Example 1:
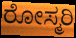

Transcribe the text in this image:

ರೋಸ್ಮರಿ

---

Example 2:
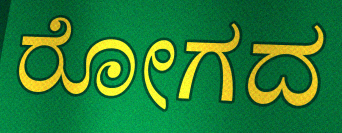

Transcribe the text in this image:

ರೋಗದ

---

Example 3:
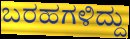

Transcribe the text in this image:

ಬರಹಗಳಿದ್ದು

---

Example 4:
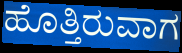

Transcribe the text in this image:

ಹೊತ್ತಿರುವಾಗ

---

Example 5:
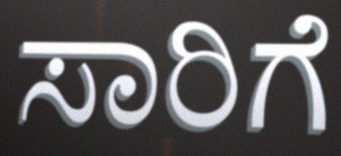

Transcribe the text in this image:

ಸಾರಿಗೆ